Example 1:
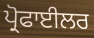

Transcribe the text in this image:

ਪ੍ਰੋਫਾਈਲਰ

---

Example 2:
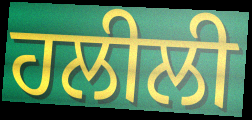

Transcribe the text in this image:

ਹਲੀਲੀ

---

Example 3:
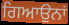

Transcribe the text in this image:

ਗਿਆਉਨਾਂ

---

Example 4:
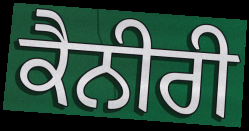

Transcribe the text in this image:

ਕੈਨੀਰੀ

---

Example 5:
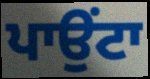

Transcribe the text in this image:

ਪਾਉੰਟਾ